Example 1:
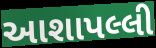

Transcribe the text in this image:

આશાપલ્લી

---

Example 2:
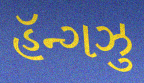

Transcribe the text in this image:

હૅન્ગઝુ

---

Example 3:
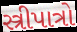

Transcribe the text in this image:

સ્ત્રીપાત્રો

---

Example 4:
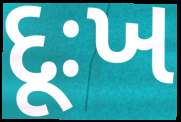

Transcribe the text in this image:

દૂઃખ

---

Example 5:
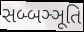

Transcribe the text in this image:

સબ્બઞ્ઞૂતિ